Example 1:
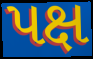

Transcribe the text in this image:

પક્ષ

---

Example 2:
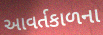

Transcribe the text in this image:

આવર્તકાળના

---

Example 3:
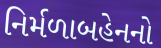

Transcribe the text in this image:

નિર્મળાબહેનનો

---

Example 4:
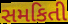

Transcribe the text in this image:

સમકિતી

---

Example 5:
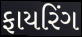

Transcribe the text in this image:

ફાયરિંગ